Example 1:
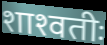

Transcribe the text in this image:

शाश्वतीः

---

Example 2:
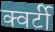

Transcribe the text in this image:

क्वर्टी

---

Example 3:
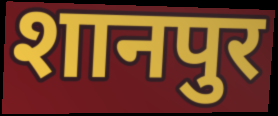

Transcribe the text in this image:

शानपुर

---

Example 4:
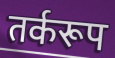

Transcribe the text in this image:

तर्करूप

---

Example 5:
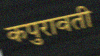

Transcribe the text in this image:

कपुरावती